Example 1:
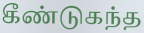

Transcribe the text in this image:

கீண்டுகந்த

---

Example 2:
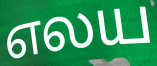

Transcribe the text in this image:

எலய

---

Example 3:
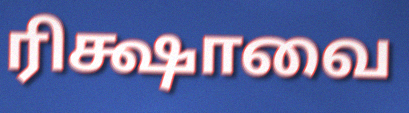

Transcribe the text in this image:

ரிக்ஷாவை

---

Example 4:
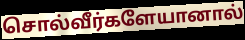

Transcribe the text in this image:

சொல்வீர்களேயானால்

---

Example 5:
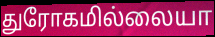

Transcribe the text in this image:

துரோகமில்லையா